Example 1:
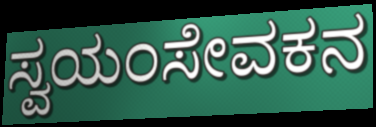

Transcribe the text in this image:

ಸ್ವಯಂಸೇವಕನ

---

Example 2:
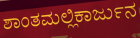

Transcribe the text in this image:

ಶಾಂತಮಲ್ಲಿಕಾರ್ಜುನ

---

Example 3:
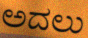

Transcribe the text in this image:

ಅದಲು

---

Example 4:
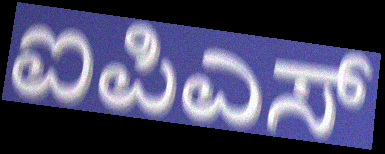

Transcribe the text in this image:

ಐಪಿಎಸ್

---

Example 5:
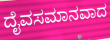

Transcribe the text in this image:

ದೈವಸಮಾನವಾದ